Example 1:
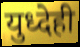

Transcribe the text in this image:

युध्देही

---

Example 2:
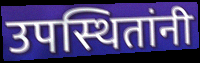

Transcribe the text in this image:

उपस्थितांनी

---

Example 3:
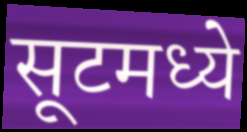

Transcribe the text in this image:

सूटमध्ये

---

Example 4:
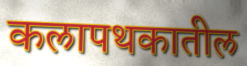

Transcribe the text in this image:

कलापथकातील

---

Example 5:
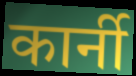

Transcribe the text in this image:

कार्नी